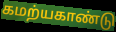
கமற்யகாண்டு